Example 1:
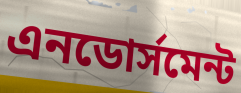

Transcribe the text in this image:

এনডোর্সমেন্ট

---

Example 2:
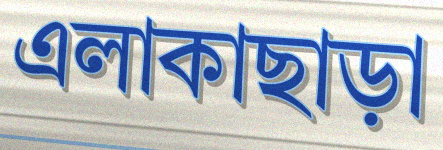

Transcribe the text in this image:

এলাকাছাড়া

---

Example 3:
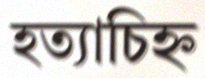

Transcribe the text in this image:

হত্যাচিহ্ন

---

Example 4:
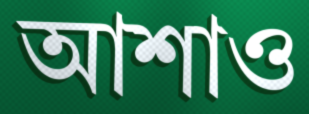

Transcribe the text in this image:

আশাও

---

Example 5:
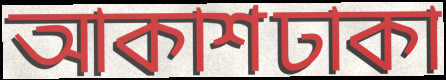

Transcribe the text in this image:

আকাশঢাকা